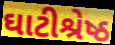
ઘાટીશ્રેષ્ઠ